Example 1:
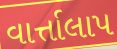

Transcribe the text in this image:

વાર્ત્તાલાપ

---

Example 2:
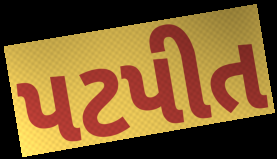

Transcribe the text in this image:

પટપીત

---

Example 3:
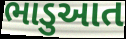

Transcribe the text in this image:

ભાડુઆત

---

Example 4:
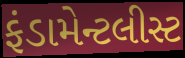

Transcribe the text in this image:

ફંડામેન્ટલીસ્ટ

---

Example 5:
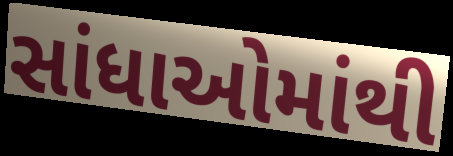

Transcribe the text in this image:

સાંધાઓમાંથી